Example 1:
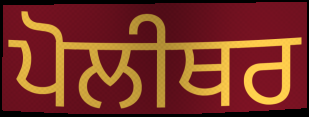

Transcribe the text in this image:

ਪੋਲੀਥਰ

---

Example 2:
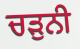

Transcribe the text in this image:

ਚੜੁਨੀ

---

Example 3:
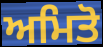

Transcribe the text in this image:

ਅਮਿਤੋ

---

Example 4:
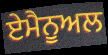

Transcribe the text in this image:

ਏਮੈਨੂਅਲ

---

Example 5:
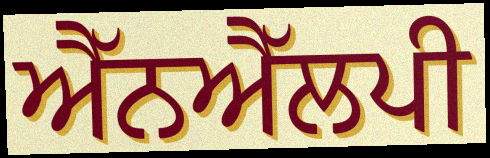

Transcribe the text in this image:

ਐੱਨਐੱਲਪੀ